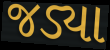
જડ્યા